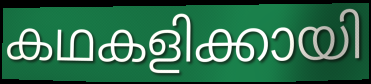
കഥകളിക്കായി